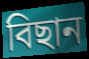
বিছান